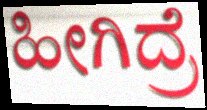
ಹೀಗಿದ್ರೆ